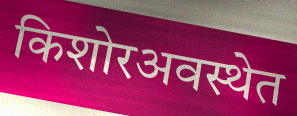
किशोरअवस्थेत